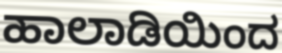
ಹಾಲಾಡಿಯಿಂದ